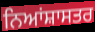
ਨਿਆਂਸ਼ਾਸਤਰ